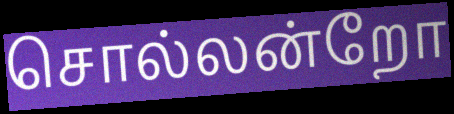
சொல்லன்றோ